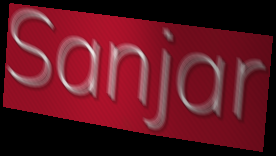
Sanjar